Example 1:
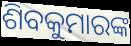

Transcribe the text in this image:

ଶିବକୁମାରଙ୍କ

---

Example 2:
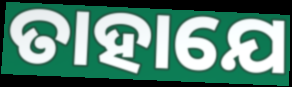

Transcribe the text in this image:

ତାହାଯେ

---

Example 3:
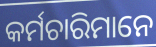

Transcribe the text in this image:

କର୍ମଚାରିମାନେ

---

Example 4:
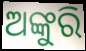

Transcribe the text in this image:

ଅଙ୍କୁରି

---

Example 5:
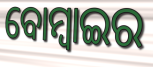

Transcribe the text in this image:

ବୋମ୍ବାଇର